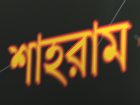
শাহরাম